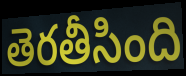
తెరతీసింది